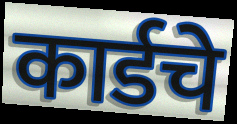
कार्डचे